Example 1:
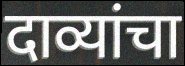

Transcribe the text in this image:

दाव्यांचा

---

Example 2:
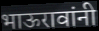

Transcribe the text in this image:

भाऊरावांनी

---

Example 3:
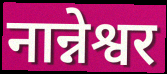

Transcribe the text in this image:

नान्नेश्वर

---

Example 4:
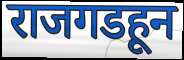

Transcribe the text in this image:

राजगडहून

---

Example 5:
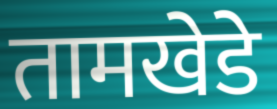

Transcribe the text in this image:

तामखेडे